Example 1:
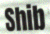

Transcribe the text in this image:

Shib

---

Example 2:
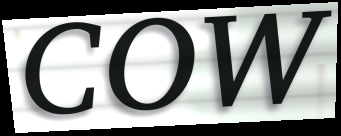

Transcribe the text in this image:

COW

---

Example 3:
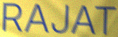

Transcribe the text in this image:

RAJAT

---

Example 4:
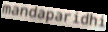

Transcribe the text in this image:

mandaparidhi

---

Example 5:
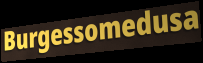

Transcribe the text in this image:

Burgessomedusa